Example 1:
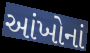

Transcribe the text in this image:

આંખોનાં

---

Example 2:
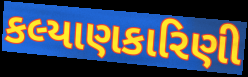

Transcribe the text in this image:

કલ્યાણકારિણી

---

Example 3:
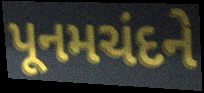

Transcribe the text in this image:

પૂનમચંદને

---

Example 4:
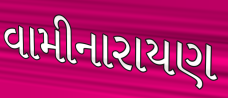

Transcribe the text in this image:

વામીનારાયણ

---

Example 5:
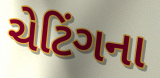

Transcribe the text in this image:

ચેટિંગના